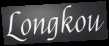
Longkou